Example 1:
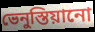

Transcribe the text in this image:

ভেনুস্তিয়ানো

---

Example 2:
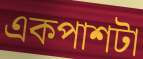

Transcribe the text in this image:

একপাশটা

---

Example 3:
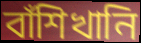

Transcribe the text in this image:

বাঁশিখানি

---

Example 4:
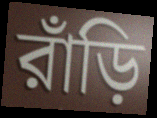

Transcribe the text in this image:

রাঁড়ি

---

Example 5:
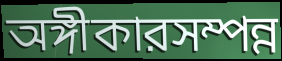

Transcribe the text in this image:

অঙ্গীকারসম্পন্ন